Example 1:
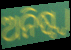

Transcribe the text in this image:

ଅନିଷ୍ଟ୍ୱା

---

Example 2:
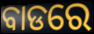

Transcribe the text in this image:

ବାଡରେ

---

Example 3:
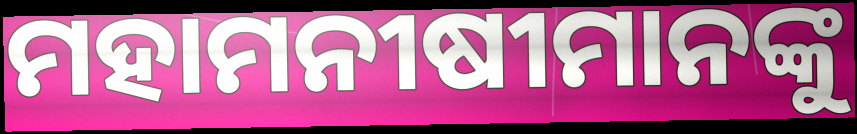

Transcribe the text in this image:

ମହାମନୀଷୀମାନଙ୍କୁ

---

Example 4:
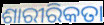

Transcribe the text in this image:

ଶାରୀରିକତା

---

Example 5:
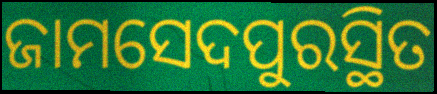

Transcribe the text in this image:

ଜାମସେଦପୁରସ୍ଥିତ